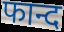
फान्द